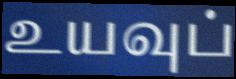
உயவுப்